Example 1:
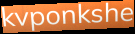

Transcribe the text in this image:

kvponkshe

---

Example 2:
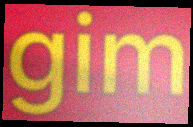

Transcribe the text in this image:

gim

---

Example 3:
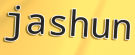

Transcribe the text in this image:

jashun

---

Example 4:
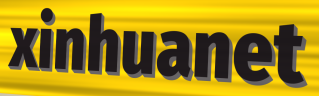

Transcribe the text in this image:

xinhuanet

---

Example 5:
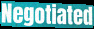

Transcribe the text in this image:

Negotiated